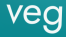
veg